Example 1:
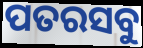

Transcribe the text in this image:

ପତରସବୁ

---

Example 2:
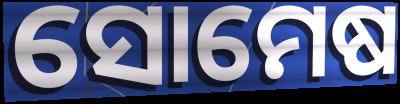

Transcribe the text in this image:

ସୋମେଷ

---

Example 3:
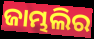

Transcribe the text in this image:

ଜାମ୍ଭଲିର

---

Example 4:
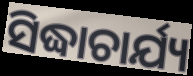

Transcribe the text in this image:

ସିଦ୍ଧାଚାର୍ଯ୍ୟ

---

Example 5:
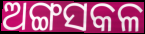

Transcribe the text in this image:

ଅଙ୍ଗସକଳ